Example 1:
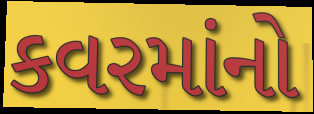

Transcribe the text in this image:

કવરમાંનો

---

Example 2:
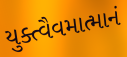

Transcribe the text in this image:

યુક્ત્વૈવમાત્માનં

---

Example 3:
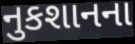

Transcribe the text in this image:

નુકશાનના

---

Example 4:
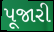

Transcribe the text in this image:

પૂજારી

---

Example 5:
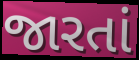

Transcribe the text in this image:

જારતાં